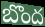
బొంద